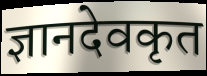
ज्ञानदेवकृत